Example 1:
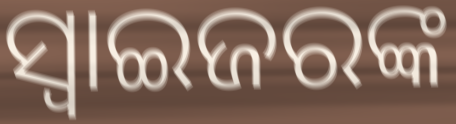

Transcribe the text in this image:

ସ୍ଵାଇଜରଙ୍କ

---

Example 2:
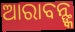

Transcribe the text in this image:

ଆରାବନ୍ଙ୍କ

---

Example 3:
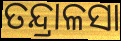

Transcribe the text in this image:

ତନ୍ଦ୍ରାଳସା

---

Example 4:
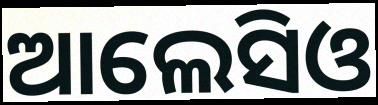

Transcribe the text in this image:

ଆଲେସିଓ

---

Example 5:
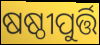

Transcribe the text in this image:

ଷଷ୍ଠୀପୁର୍ତ୍ତି